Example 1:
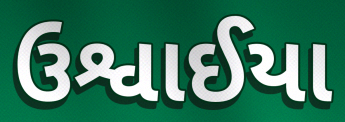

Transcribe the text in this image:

ઉશ્વાઈયા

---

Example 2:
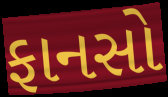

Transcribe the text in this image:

ફાનસો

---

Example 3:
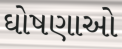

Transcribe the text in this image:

ઘોષણાઓ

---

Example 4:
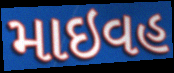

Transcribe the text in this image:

માઇવહ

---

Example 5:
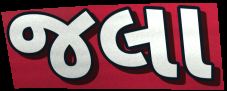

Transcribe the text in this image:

જલા